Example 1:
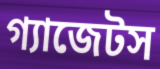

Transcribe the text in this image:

গ্যাজেটস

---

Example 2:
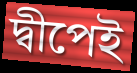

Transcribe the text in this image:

দ্বীপেই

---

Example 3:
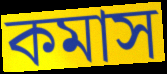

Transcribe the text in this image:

কমাস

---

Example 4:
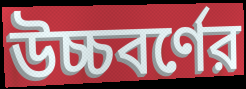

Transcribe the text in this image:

উচ্চবর্ণের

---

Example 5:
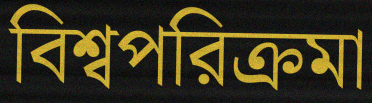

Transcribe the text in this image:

বিশ্বপরিক্রমা